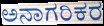
ಅನಾಗರಿಕರ